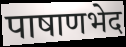
पाषाणभेद